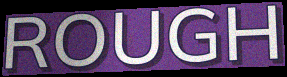
ROUGH